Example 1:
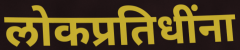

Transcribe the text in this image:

लोकप्रतिधींना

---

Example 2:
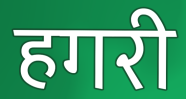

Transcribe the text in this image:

हगरी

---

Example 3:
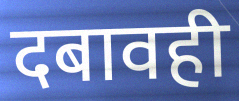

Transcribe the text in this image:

दबावही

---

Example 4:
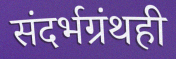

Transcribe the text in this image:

संदर्भग्रंथही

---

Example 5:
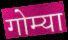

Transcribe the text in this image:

गोम्या